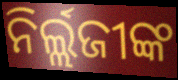
ନିର୍ଲ୍ଲଜୀଙ୍କ